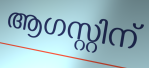
ആഗസ്റ്റിന്